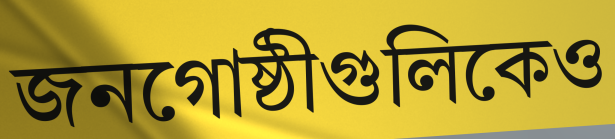
জনগোষ্ঠীগুলিকেও